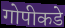
गोपीकडे